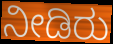
ನೀಡಿರು